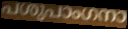
പശുപാംഗനാ